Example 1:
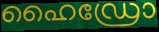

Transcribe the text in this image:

ഹൈഡ്രോ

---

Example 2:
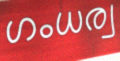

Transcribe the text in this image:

ഗംധര്വ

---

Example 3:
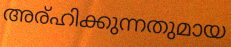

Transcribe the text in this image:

അര്ഹിക്കുന്നതുമായ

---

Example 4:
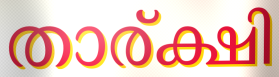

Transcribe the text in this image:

താര്ക്ഷി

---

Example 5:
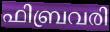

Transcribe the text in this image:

ഫിബ്രവരി